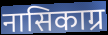
नासिकाग्र